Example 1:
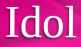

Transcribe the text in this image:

Idol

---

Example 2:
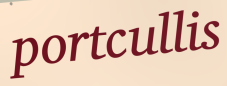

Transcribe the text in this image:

portcullis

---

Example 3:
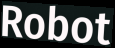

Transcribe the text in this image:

Robot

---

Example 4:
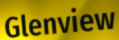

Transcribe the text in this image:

Glenview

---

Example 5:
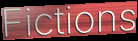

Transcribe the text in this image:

Fictions